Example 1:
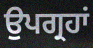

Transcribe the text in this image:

ਉਪਗ੍ਰਹਾਂ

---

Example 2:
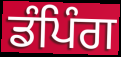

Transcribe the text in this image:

ਡੰਪਿੰਗ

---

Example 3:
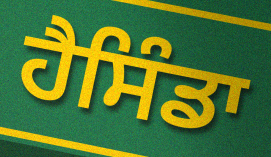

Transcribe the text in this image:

ਹੈਸਿੰਡਾ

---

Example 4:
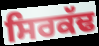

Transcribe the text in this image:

ਸਿਰਕੱਢ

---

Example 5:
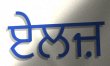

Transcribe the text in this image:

ਏਲਜ਼